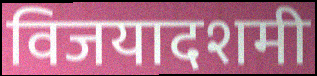
विजयादशमी